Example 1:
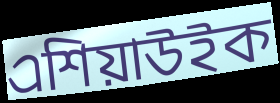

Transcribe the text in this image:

এশিয়াউইক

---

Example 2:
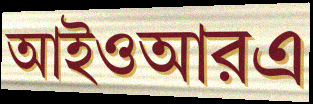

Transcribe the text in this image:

আইওআরএ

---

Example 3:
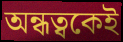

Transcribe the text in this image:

অন্ধত্বকেই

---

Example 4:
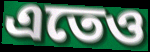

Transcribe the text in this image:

এতেও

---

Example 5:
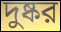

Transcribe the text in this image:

দুষ্কর